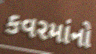
કવરમાંનો